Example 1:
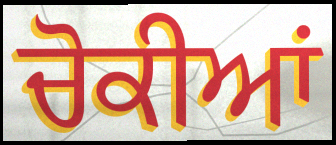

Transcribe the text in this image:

ਚੋਕੀਆਂ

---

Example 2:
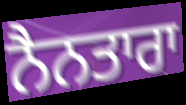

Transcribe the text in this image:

ਨੈਨਤਾਰਾ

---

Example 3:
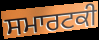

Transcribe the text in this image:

ਸਮਾਰਟਕੀ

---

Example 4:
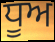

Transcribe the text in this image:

ਧੂਅ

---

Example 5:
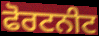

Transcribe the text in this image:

ਫੋਰਟਨੀਟ